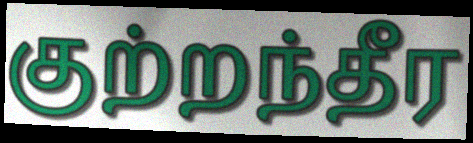
குற்றந்தீர